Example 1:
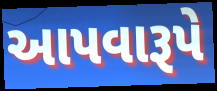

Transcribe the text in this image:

આપવારૂપે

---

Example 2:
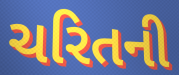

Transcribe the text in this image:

ચરિતની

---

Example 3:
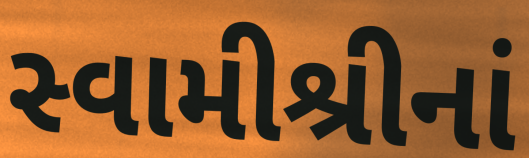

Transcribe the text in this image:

સ્વામીશ્રીનાં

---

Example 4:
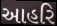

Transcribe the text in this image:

આહરિ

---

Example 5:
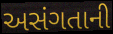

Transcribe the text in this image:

અસંગતાની